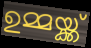
ഉമ്മയ്ക്ക്